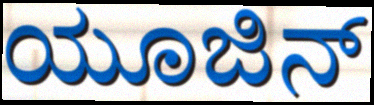
ಯೂಜಿನ್